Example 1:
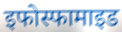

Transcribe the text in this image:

इफोस्फामाइड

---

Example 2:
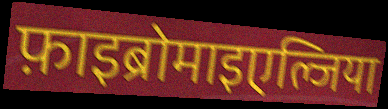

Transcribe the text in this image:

फ़ाइब्रोमाइएल्जिया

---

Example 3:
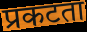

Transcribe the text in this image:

प्रकटता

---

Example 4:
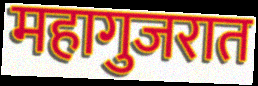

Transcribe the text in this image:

महागुजरात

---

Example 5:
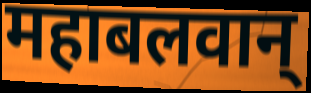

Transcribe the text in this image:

महाबलवान्